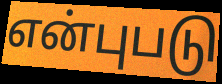
என்புபடு